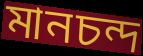
মানচন্দ